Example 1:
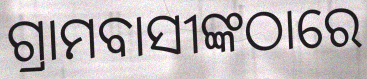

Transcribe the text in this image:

ଗ୍ରାମବାସୀଙ୍କଠାରେ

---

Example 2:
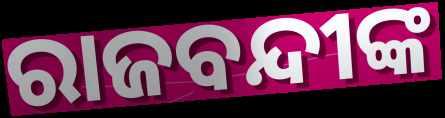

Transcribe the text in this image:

ରାଜବନ୍ଦୀଙ୍କ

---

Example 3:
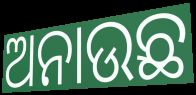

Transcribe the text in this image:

ଅନାଉଛ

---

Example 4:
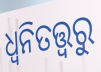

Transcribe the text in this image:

ଧ୍ୱନିତତ୍ତ୍ୱରୁ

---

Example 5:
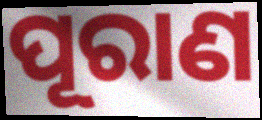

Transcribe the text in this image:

ପୂରାଣ